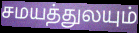
சமயத்துலயும்